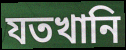
যতখানি